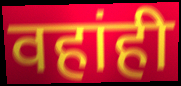
वहांही